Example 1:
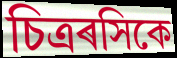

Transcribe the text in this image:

চিত্ৰৰসিকে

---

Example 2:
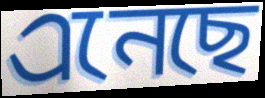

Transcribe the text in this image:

এনেছে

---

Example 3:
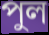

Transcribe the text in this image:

পুল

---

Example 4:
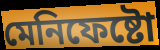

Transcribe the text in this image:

মেনিফেষ্টো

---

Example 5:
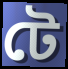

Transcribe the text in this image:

টে